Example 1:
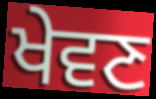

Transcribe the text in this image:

ਖੇਵਣ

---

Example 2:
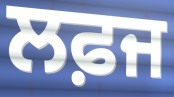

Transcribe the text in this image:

ਲਫ਼ਜ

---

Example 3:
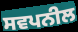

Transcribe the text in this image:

ਸਵਪਨੀਲ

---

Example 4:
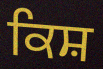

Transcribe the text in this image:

ਕਿਸ਼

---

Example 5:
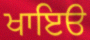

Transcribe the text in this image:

ਖਾਇੳ